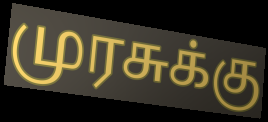
முரசுக்கு